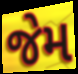
જેમ